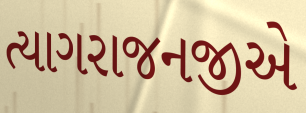
ત્યાગરાજનજીએ